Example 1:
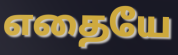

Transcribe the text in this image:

எதையே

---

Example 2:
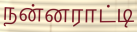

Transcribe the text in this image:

நன்னராட்டி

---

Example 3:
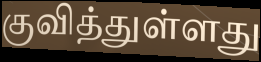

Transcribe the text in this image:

குவித்துள்ளது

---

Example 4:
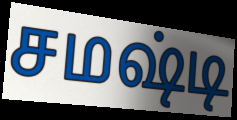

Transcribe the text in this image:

சமஷ்டி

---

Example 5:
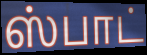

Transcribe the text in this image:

ஸ்பாட்